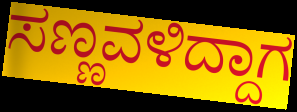
ಸಣ್ಣವಳಿದ್ದಾಗ